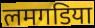
लमगडिया